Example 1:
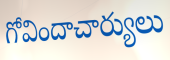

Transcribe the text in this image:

గోవిందాచార్యులు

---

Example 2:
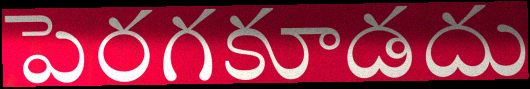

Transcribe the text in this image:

పెరగకూడదు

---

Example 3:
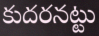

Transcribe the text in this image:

కుదరనట్టు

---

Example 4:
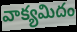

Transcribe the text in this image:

వాక్యమిదం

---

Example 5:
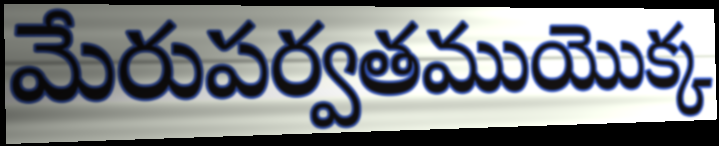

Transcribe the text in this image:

మేరుపర్వతముయొక్క